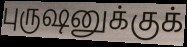
புருஷனுக்குக்